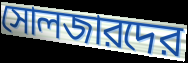
সোলজারদের